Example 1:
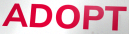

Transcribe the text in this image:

ADOPT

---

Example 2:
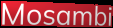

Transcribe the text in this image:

Mosambi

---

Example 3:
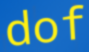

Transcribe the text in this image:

dof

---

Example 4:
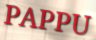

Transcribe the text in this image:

PAPPU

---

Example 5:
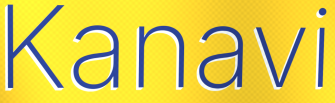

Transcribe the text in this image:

Kanavi